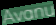
Avanu